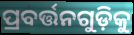
ପ୍ରବର୍ତ୍ତନଗୁଡ଼ିକୁ